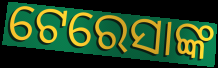
ଟେରେସାଙ୍କ